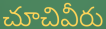
చూచివీరు